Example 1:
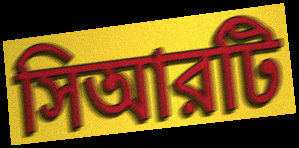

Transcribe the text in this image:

সিআরটি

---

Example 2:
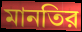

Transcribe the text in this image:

মানতির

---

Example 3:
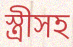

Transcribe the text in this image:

স্ত্রীসহ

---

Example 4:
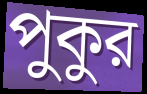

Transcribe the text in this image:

পুকুর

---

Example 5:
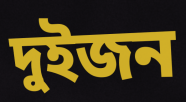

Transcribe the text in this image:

দুইজন